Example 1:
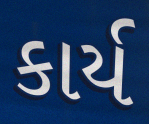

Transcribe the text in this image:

કાર્ય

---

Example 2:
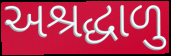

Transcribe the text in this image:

અશ્રદ્ધાળુ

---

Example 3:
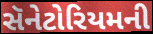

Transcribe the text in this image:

સૅનેટોરિયમની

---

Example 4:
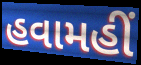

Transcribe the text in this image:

હવામહીં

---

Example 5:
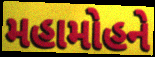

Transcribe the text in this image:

મહામોહને